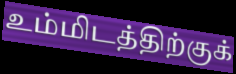
உம்மிடத்திற்குக்